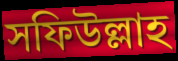
সফিউল্লাহ